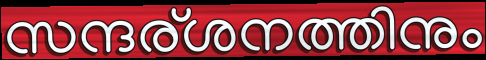
സന്ദര്ശനത്തിനും